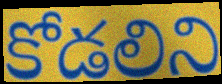
కోడలిని